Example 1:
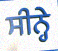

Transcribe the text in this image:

ਸੀਨ੍ਹੇ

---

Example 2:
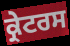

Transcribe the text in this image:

ਕ੍ਰੇਟਰਸ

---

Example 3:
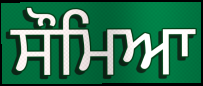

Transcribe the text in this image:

ਸੌਮਿਆ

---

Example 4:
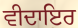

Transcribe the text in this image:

ਵੀਦਾਇਰ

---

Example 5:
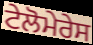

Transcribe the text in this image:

ਟੇਲੋਮੇਰੇਸ